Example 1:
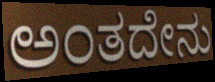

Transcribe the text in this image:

ಅಂತದೇನು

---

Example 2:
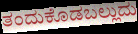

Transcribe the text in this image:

ತಂದುಕೊಡಬಲ್ಲುದು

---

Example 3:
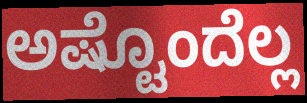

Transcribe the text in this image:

ಅಷ್ಟೊಂದೆಲ್ಲ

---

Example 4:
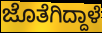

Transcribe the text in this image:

ಜೊತೆಗಿದ್ದಾಳೆ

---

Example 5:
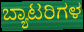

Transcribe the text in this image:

ಬ್ಯಾಟರಿಗಳ